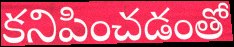
కనిపించడంతో